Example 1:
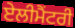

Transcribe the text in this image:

ਏਲੀਮੈਂਟਰੀ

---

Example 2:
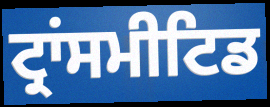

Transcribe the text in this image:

ਟ੍ਰਾਂਸਮੀਟਿਡ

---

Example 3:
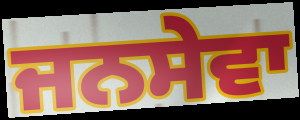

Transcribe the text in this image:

ਜਨਸੇਵਾ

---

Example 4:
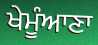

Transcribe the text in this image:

ਖੇਮੂੰਆਣਾ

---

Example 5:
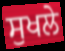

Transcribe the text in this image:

ਸੁਖਲੇ